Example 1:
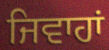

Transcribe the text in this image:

ਜਿਵਾਹਾਂ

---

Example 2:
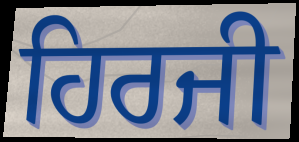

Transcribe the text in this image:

ਹਿਰਜੀ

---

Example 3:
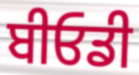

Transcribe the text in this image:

ਬੀਓਡੀ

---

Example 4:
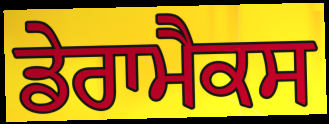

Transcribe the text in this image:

ਡੇਰਾਮੈਕਸ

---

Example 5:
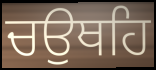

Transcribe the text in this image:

ਚਉਥਹਿ